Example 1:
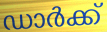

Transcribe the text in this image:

ഡാർക്ക്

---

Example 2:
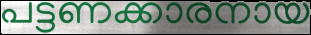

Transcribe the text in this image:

പട്ടണക്കാരനായ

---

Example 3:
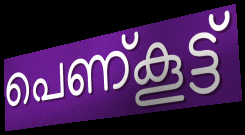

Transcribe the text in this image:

പെണ്കൂട്ട്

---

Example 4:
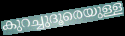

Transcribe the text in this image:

കുറച്ചുദൂരെയുള്ള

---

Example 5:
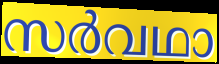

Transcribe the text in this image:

സർവഥാ